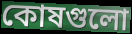
কোষগুলো